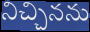
నిచ్చినను